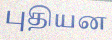
புதியன